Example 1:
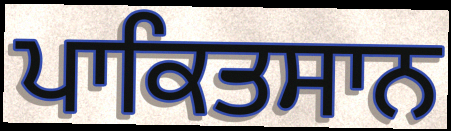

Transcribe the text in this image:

ਪਾਕਿਤਸਾਨ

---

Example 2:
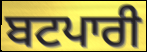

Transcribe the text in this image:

ਬਟਪਾਰੀ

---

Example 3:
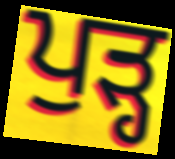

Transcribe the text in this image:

ਪੁੜ੍ਹ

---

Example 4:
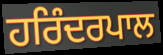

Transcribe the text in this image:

ਹਰਿੰਦਰਪਾਲ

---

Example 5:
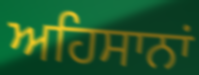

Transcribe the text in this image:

ਅਹਿਸਾਨਾਂ